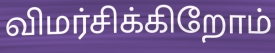
விமர்சிக்கிறோம்